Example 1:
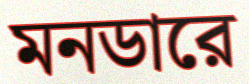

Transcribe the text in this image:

মনডারে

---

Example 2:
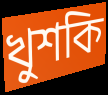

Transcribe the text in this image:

খুশকি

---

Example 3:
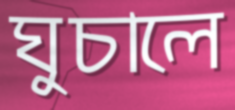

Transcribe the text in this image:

ঘুচালে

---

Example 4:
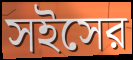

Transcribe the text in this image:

সইসের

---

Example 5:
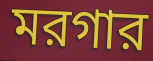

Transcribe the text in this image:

মরগার